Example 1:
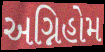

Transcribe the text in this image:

અગ્નિહોમ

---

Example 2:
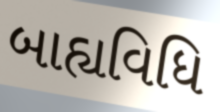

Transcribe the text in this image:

બાહ્યવિધિ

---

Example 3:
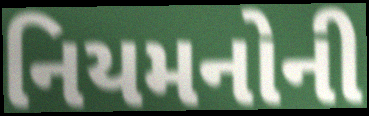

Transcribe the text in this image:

નિયમનોની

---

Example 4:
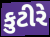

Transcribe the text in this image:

કુટીરે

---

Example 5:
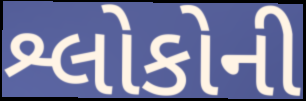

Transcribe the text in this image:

શ્લોકોની